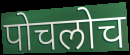
पोचलोच